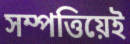
সম্পত্তিয়েই